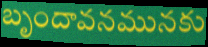
బృందావనమునకు